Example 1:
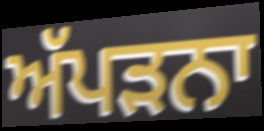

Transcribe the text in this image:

ਅੱਪੜਨਾ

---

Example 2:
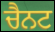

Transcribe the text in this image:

ਚੈਨਟ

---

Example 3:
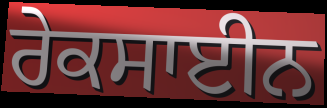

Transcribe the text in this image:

ਰੇਕਸਾਈਨ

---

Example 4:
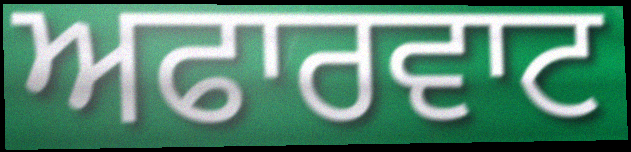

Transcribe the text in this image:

ਅਫਾਰਵਾਟ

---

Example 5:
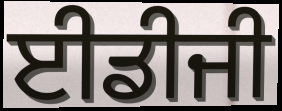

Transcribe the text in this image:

ਈਡੀਜੀ